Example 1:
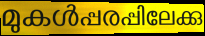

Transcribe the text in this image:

മുകൾപ്പരപ്പിലേക്കു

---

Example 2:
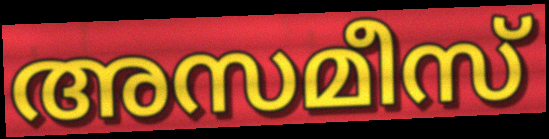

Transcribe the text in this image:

അസമീസ്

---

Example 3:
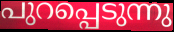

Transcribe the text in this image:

പുറപ്പെടുന്നു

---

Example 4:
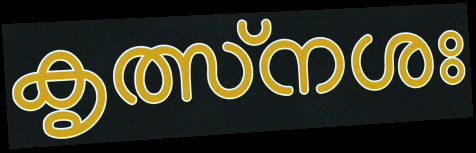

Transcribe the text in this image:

കൃത്സ്നശഃ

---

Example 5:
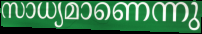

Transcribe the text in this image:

സാധ്യമാണെന്നു